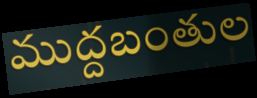
ముద్దబంతుల